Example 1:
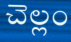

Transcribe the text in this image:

చెల్లం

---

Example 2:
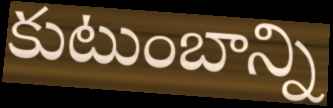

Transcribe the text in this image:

కుటుంబాన్ని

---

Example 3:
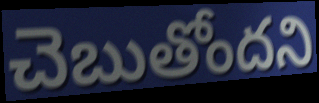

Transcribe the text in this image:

చెబుతోందని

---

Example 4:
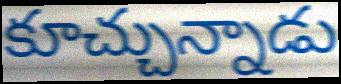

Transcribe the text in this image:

కూచ్చున్నాడు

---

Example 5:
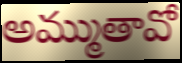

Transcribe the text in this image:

అమ్ముతావో